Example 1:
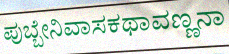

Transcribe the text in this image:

ಪುಬ್ಬೇನಿವಾಸಕಥಾವಣ್ಣನಾ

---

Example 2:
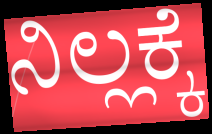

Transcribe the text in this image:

ನಿಲ್ಲಕ್ಕೆ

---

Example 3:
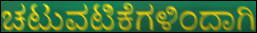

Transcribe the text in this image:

ಚಟುವಟಿಕೆಗಳಿಂದಾಗಿ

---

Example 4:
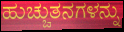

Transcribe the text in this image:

ಹುಚ್ಚುತನಗಳನ್ನು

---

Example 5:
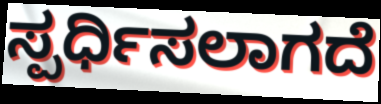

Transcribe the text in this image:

ಸ್ಪರ್ಧಿಸಲಾಗದೆ